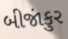
બીજાંકુર